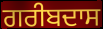
ਗਰੀਬਦਾਸ